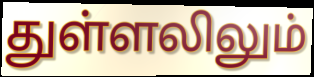
துள்ளலிலும்